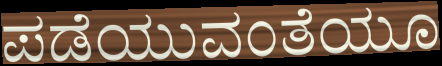
ಪಡೆಯುವಂತೆಯೂ